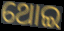
ଥୋଇ